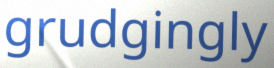
grudgingly